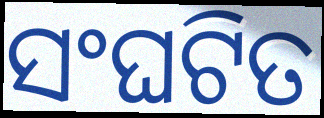
ସଂଘଟିତ